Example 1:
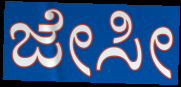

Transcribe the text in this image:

ಜೇಸೀ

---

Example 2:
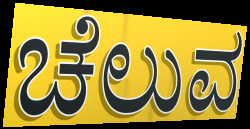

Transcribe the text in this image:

ಚೆಲುವ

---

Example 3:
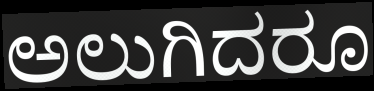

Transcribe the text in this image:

ಅಲುಗಿದರೂ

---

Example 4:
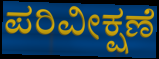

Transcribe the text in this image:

ಪರಿವೀಕ್ಷಣೆ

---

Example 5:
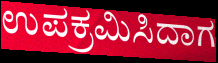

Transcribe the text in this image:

ಉಪಕ್ರಮಿಸಿದಾಗ